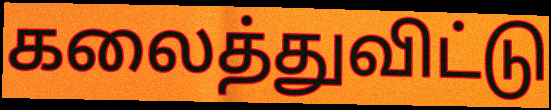
கலைத்துவிட்டு